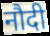
नौदी